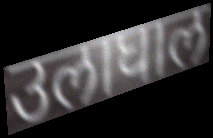
उलाघाल